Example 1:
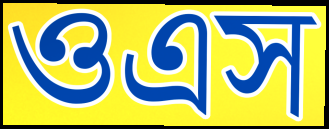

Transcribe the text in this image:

ওএস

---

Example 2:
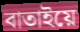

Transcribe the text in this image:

বাতাইয়ে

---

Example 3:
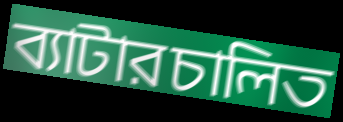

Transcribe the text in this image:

ব্যাটারচালিত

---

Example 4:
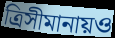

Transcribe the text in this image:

ত্রিসীমানায়ও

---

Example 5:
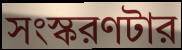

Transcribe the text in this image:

সংস্করণটার